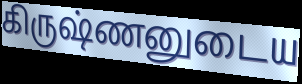
கிருஷ்ணனுடைய